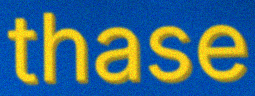
thase